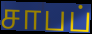
சாபப்